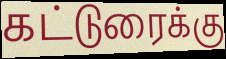
கட்டுரைக்கு